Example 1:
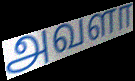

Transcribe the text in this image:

அவளா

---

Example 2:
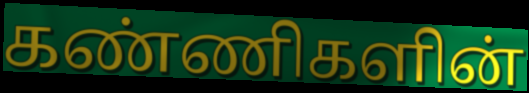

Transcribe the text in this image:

கண்ணிகளின்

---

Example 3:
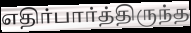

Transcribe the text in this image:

எதிர்பார்த்திருந்த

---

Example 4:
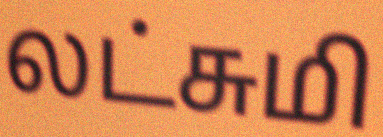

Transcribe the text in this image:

லட்சுமி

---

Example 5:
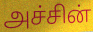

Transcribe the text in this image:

அச்சின்